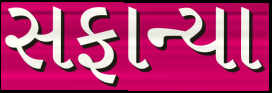
સફાન્યા